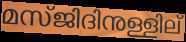
മസ്ജിദിനുള്ളില്